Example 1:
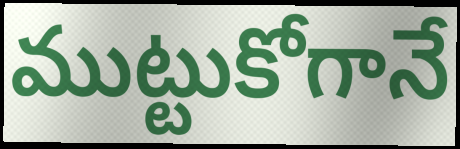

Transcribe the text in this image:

ముట్టుకోగానే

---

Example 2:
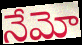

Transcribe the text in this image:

నేమో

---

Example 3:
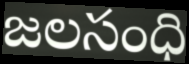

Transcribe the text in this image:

జలసంధి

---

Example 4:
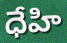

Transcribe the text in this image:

ధేహి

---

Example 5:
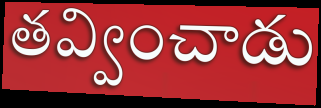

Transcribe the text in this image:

తవ్వించాడు